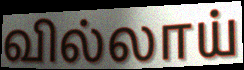
வில்லாய்